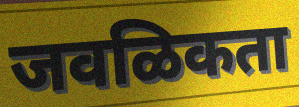
जवळिकता